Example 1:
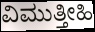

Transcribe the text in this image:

ವಿಮುತ್ತೀಹಿ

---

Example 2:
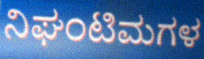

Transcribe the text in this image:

ನಿಘಂಟಿಮಗಳ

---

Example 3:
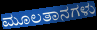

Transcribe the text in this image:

ಮೂಲತಾನಗಳು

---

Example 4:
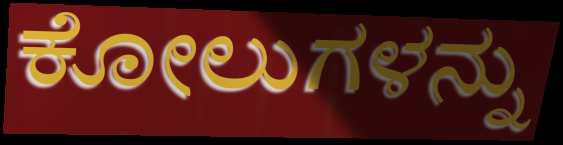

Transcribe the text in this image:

ಕೋಲುಗಳನ್ನು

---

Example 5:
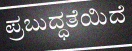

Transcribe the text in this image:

ಪ್ರಬುದ್ಧತೆಯಿದೆ